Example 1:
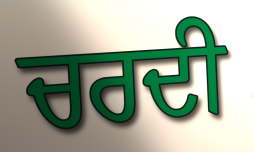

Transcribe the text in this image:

ਚਰਦੀ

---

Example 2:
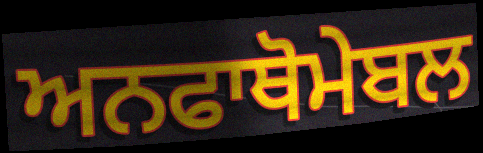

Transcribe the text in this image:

ਅਨਫਾਥੋਮੇਬਲ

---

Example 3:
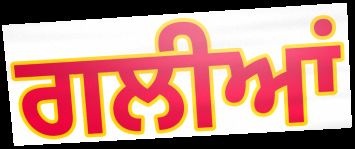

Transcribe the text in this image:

ਗਲੀਆਂ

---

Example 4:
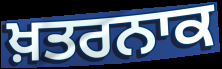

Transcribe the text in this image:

ਖ਼ਤਰਨਾਕ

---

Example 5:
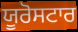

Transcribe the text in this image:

ਯੂਰੋਸਟਾਰ